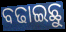
ବଢାଇଛୁ